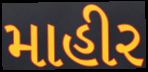
માહીર